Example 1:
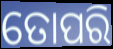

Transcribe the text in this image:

ତୋପରି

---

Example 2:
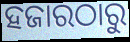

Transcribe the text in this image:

ହଜାରଠାରୁ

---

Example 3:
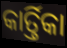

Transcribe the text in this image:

କାର୍ତ୍ତିକା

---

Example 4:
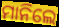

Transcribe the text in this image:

ମାନିଲେ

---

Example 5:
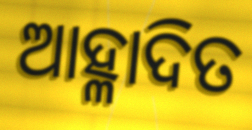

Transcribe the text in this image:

ଆହ୍ଳାଦିତ